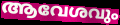
ആവേശവും